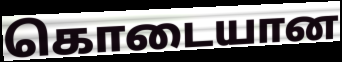
கொடையான